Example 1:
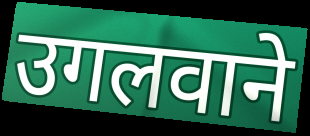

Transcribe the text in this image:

उगलवाने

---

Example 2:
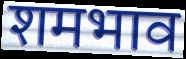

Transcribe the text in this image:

शमभाव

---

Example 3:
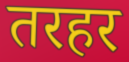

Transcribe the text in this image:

तरहर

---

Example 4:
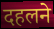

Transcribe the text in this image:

दहलने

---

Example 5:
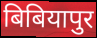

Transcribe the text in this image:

बिबियापुर